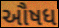
ઔષધ